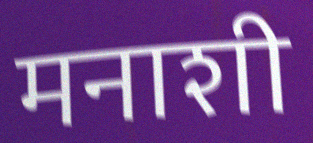
मनाशी